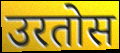
उरतोस